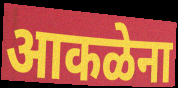
आकळेना